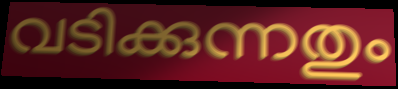
വടിക്കുന്നതും